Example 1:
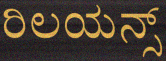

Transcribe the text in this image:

ರಿಲಯನ್ಸ್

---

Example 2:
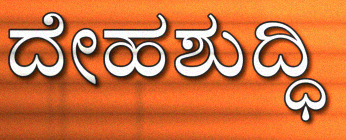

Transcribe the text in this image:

ದೇಹಶುದ್ಧಿ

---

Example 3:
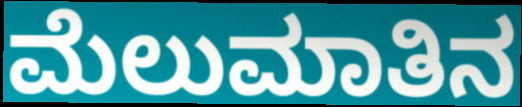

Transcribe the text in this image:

ಮೆಲುಮಾತಿನ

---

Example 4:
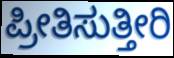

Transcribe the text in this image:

ಪ್ರೀತಿಸುತ್ತೀರಿ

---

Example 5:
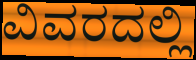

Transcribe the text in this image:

ವಿವರದಲ್ಲಿ